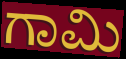
ಗಾಮಿ